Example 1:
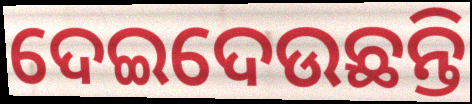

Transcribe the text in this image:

ଦେଇଦେଉଛନ୍ତି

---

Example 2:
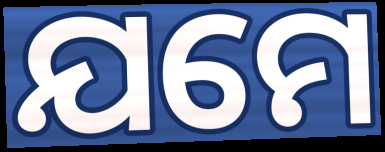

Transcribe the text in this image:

ଯମେ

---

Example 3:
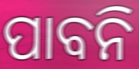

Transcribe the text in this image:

ପାବନି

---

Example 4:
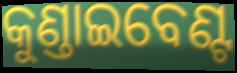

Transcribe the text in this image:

କୁଣ୍ଡାଇବେଣ୍ଟ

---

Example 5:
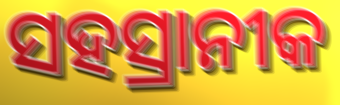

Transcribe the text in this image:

ସହସ୍ରାନୀକ